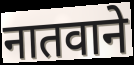
नातवाने